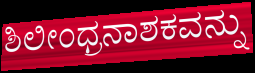
ಶಿಲೀಂಧ್ರನಾಶಕವನ್ನು